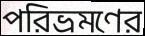
পরিভ্রমণের